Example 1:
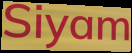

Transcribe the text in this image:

Siyam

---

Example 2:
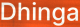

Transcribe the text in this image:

Dhinga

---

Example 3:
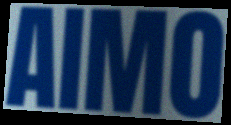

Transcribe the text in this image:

AIMO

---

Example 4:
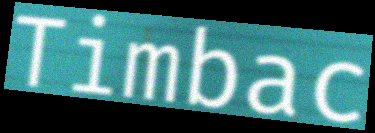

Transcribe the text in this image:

Timbac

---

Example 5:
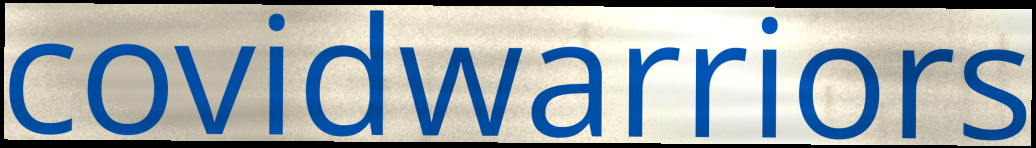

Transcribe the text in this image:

covidwarriors